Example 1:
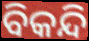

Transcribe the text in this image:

ବିକନ୍ଦି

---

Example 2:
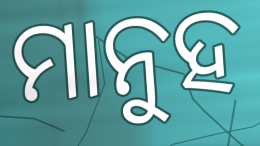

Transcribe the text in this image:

ମାନୁହ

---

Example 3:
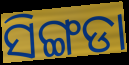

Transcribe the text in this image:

ସିଙ୍ଗଡା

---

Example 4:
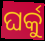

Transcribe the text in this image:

ଘର୍କୁ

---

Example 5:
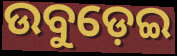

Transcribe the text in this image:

ଉବୁଡ଼େଇ